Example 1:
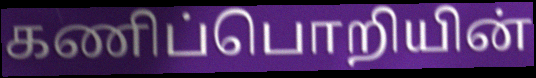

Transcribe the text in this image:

கணிப்பொறியின்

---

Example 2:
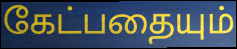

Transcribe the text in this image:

கேட்பதையும்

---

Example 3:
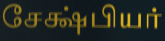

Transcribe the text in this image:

சேக்ஷ்பியர்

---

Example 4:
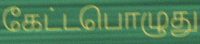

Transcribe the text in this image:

கேட்டபொழுது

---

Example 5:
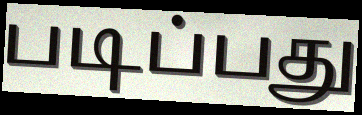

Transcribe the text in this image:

படிப்பது